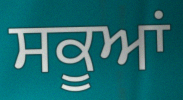
ਸਕੂਆਂ